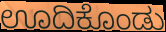
ಊದಿಕೊಂಡು